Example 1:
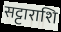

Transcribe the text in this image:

सट्टाराशि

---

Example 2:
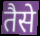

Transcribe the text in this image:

तैसे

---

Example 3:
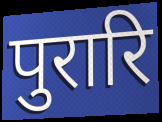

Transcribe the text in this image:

पुरारि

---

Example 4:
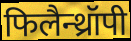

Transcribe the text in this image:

फिलैन्थ्रॉपी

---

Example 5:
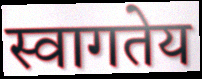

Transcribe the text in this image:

स्वागतेय